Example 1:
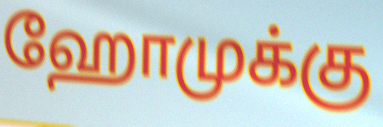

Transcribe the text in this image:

ஹோமுக்கு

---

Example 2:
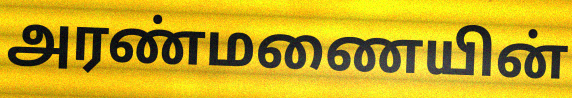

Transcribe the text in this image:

அரண்மணையின்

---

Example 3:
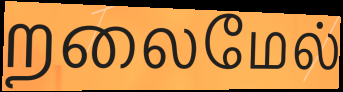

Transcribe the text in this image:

றலைமேல்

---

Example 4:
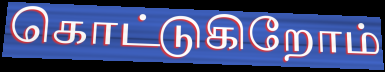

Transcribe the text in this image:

கொட்டுகிறோம்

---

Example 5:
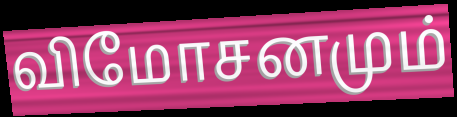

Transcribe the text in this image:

விமோசனமும்